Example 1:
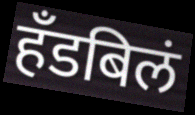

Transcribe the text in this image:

हँडबिलं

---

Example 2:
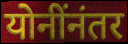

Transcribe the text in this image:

योनींनंतर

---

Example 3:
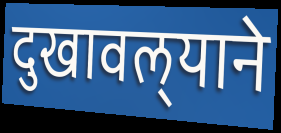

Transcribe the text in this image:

दुखावल्याने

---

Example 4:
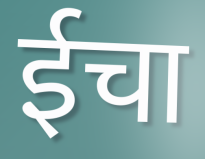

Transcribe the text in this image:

ईचा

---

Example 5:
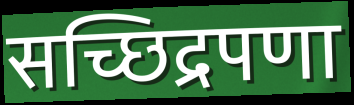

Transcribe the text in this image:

सच्छिद्रपणा